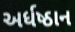
અર્ધષ્ઠાન